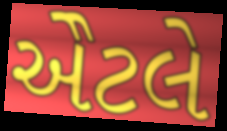
એેટલે